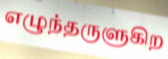
எழுந்தருளுகிற